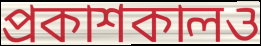
প্রকাশকালও